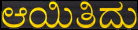
ಆಯಿತಿದು